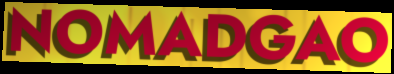
NOMADGAO